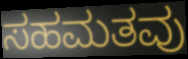
ಸಹಮತವು